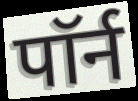
पॉर्न